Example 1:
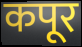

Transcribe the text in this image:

कपूर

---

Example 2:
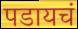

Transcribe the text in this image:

पडायचं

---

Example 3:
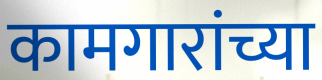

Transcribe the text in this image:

कामगारांच्या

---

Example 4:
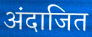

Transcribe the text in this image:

अंदाजित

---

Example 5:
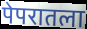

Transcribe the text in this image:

पेपरातला